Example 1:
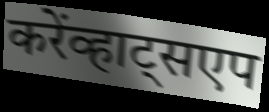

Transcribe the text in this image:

करेंव्हाट्सएप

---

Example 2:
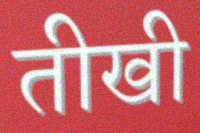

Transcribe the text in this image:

तीखी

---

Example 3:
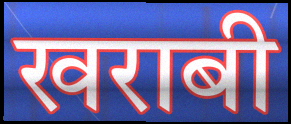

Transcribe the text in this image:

खराबी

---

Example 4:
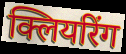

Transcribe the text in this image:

क्लियरिंग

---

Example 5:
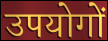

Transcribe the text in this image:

उपयोगों